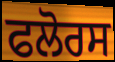
ਫਲੋਰਸ